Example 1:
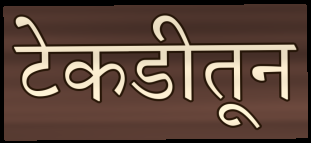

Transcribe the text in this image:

टेकडीतून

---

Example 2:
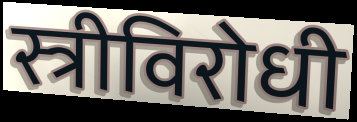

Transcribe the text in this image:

स्त्रीविरोधी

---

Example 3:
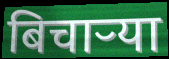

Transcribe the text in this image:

बिचाऱ्या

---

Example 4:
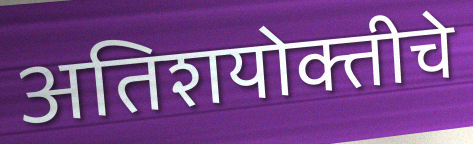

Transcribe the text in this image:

अतिशयोक्तीचे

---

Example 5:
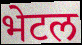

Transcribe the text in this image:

भेटल